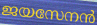
ജയസേനൻ